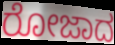
ರೋಜಾದ